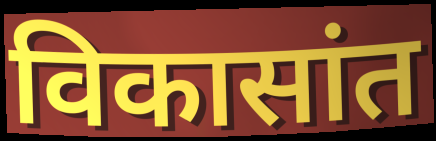
विकासांत